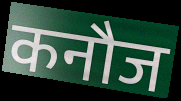
कनौज